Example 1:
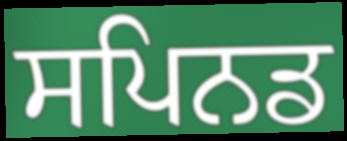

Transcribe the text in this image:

ਸਪਿਨਡ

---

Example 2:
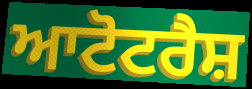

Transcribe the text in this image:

ਆਟੋਟਰੈਸ਼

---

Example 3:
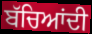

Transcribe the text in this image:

ਬੱਚਿਆਂਦੀ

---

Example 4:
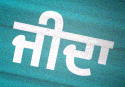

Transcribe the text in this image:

ਜੀਦਾ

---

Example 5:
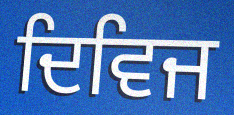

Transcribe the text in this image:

ਦਿਵਿਜ